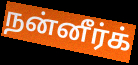
நன்னீர்க்